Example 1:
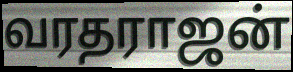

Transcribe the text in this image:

வரதராஜன்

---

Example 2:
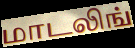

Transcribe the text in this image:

மாடலிங்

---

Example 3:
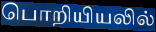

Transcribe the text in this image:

பொறியியலில்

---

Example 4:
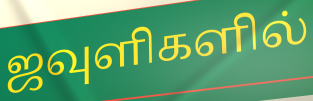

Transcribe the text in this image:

ஜவுளிகளில்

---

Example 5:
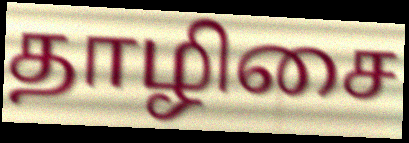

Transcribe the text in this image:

தாழிசை